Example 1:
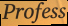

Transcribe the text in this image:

Profess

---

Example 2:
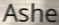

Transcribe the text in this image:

Ashe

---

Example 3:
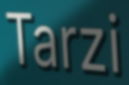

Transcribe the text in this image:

Tarzi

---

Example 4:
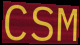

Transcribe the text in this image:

CSM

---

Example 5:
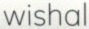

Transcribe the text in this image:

wishal